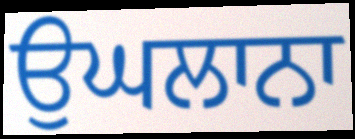
ਉਘਲਾਨਾ